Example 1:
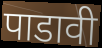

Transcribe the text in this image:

पाडावी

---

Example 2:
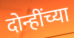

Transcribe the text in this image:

दोन्हींच्या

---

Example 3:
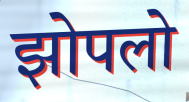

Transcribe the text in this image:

झोपलो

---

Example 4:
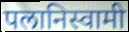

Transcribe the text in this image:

पलानिस्वामी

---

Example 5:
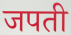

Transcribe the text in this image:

जपती